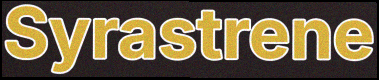
Syrastrene